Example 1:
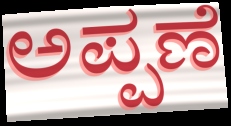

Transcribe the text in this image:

ಅಪ್ಪಣೆ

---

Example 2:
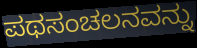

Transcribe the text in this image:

ಪಥಸಂಚಲನವನ್ನು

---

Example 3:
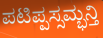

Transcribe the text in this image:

ಪಟಿಪ್ಪಸ್ಸಮ್ಭನ್ತಿ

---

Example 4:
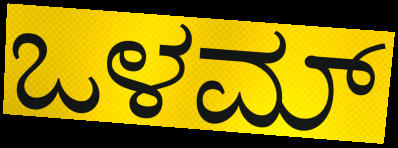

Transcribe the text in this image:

ಒಳಮ್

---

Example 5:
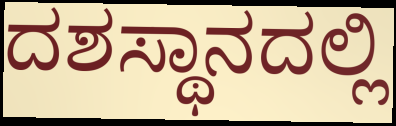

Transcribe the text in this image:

ದಶಸ್ಥಾನದಲ್ಲಿ